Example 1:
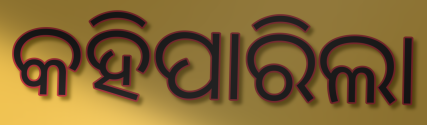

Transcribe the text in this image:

କହିପାରିଲା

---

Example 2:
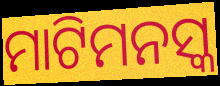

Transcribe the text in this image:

ମାଟିମନସ୍କ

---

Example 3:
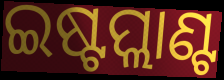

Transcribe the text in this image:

ଇଷ୍ଟପ୍ଲାଣ୍ଟ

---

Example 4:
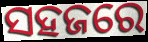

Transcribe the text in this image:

ସହଜରେ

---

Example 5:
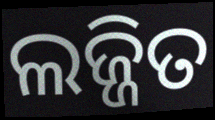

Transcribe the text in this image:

ଲଜ୍ଜିତ